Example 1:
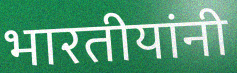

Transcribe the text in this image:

भारतीयांनी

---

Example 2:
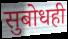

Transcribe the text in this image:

सुबोधही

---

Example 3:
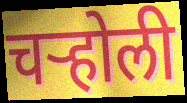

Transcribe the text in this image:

चऱ्होली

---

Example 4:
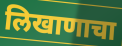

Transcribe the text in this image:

लिखाणाचा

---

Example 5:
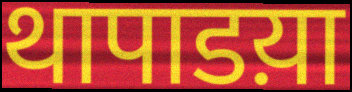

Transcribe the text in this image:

थापाडय़ा